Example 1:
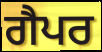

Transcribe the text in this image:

ਗੈਪਰ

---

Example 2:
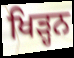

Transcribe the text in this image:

ਖਿੜ੍ਹਨ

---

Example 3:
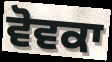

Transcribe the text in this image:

ਵੋਵਕਾ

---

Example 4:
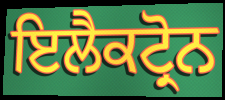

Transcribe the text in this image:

ਇਲੈਕਟ੍ਰੋਨ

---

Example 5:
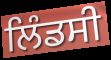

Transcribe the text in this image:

ਲਿੰਡਸੀ